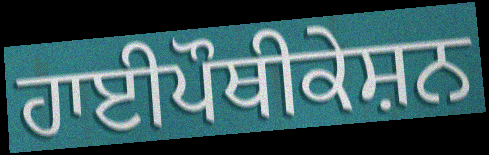
ਹਾਈਪੌਥੀਕੇਸ਼ਨ